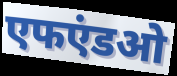
एफएंडओ